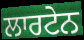
ਲਾਰਟੇਨ